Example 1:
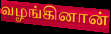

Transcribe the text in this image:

வழங்கினான்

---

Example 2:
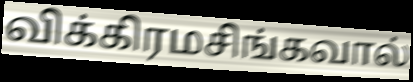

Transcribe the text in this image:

விக்கிரமசிங்கவால்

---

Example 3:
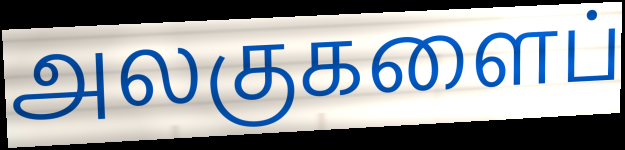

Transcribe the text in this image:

அலகுகளைப்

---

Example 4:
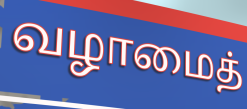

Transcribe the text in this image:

வழாமைத்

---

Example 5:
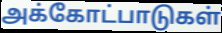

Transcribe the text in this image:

அக்கோட்பாடுகள்